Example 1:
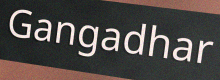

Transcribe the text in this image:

Gangadhar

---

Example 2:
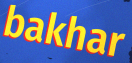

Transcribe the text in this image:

bakhar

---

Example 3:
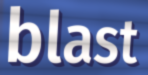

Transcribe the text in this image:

blast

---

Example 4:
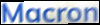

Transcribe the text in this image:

Macron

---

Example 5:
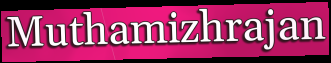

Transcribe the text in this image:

Muthamizhrajan